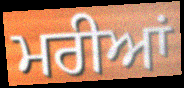
ਮਰੀਆਂ